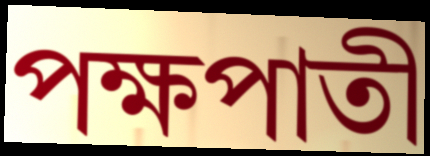
পক্ষপাতী